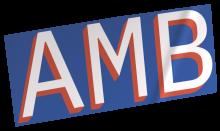
AMB